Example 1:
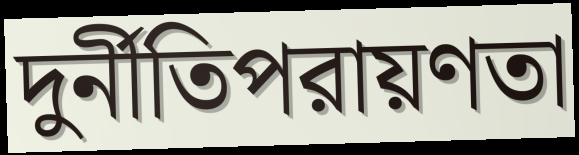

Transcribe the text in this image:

দুর্নীতিপরায়ণতা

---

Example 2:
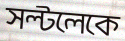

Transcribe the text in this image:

সল্টলেকে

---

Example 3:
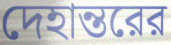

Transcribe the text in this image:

দেহান্তরের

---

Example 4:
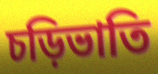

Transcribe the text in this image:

চড়িভাতি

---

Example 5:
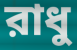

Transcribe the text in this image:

রাধু